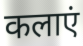
कलाएं